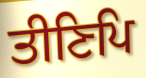
ਤੀਣਿਪਿ